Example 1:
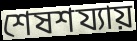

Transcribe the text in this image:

শেষশয্যায়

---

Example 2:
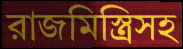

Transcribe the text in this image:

রাজমিস্ত্রিসহ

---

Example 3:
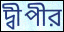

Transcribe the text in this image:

দ্বীপীর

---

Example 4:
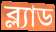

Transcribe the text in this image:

ব্ল্যাড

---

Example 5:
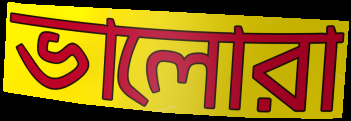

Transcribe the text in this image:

ভালোরা